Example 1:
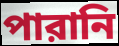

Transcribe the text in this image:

পারানি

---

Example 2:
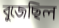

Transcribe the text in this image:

বুজেছিল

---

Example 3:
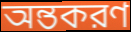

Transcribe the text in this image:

অন্তকরণ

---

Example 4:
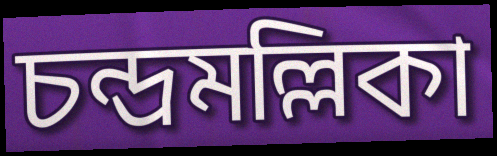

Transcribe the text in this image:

চন্দ্রমল্লিকা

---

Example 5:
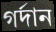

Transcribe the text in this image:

গর্দান